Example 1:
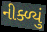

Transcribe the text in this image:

નીક્ળ્યું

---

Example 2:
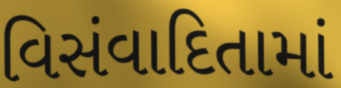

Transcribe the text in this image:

વિસંવાદિતામાં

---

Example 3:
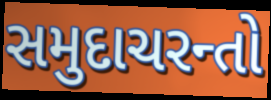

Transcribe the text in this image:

સમુદાચરન્તો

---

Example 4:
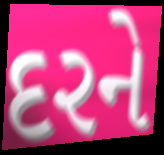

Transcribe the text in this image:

દરને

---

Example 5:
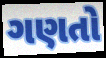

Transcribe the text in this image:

ગણતો